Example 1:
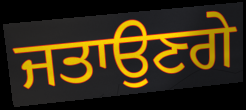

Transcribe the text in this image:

ਜਤਾਉਣਗੇ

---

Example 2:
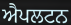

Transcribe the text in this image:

ਐਪਲਟਨ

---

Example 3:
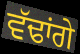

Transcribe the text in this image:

ਵੱਢਾਂਗੇ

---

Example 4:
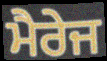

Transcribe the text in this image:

ਮੈਰੇਜ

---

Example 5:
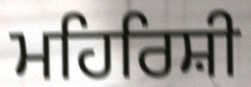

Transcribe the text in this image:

ਮਹਿਰਿਸ਼ੀ